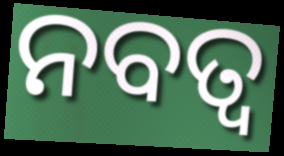
ନବତ୍ଵ